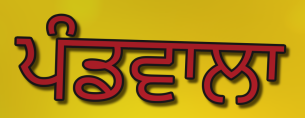
ਪੰਡਵਾਲਾ